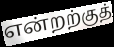
என்றற்குத்